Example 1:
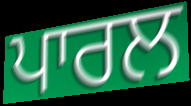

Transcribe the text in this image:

ਪਾਰਲ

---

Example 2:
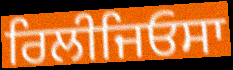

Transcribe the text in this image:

ਰਿਲੀਜਿਓਸਾ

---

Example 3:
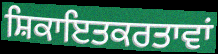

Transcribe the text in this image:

ਸ਼ਿਕਾਇਤਕਰਤਾਵਾਂ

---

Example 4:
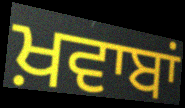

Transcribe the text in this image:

ਖ਼ਵਾਬਾਂ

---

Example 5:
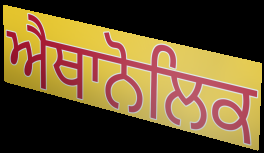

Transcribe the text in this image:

ਐਥਾਨੋਲਿਕ